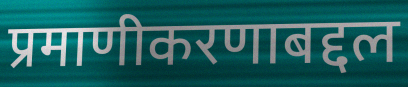
प्रमाणीकरणाबद्दल